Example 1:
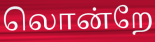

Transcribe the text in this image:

லொன்றே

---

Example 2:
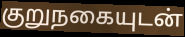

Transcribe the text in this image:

குறுநகையுடன்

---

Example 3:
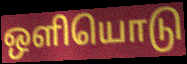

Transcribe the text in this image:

ஒளியொடு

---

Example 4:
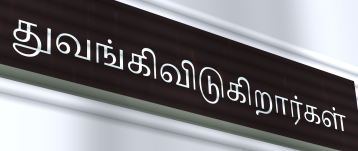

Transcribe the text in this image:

துவங்கிவிடுகிறார்கள்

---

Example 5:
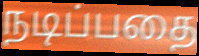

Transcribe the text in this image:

நடிப்பதை